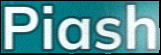
Piash